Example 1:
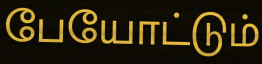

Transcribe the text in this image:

பேயோட்டும்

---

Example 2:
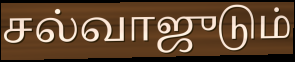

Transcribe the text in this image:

சல்வாஜுடும்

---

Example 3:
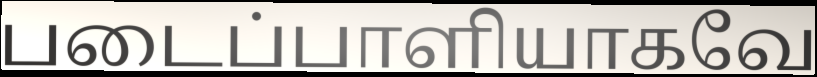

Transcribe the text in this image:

படைப்பாளியாகவே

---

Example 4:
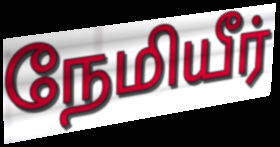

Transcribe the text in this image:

நேமியீர்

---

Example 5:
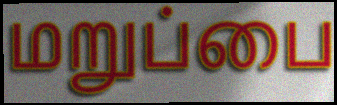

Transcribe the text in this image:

மறுப்பை